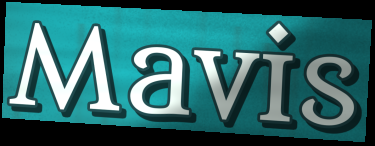
Mavis